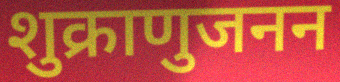
शुक्राणुजनन